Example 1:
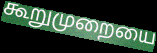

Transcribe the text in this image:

கூறுமுறையை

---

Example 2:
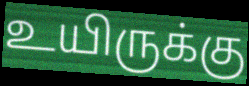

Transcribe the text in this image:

உயிருக்கு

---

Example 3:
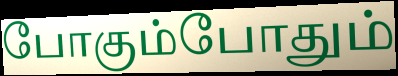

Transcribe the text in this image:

போகும்போதும்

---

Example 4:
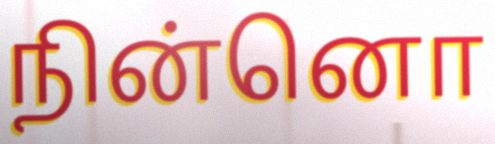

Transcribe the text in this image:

நின்னொ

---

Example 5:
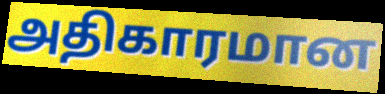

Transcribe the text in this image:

அதிகாரமான